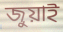
জুয়াই